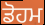
ਡੋਹਮ